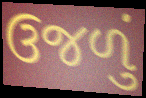
ઉજળું